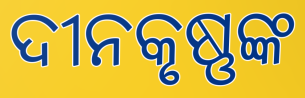
ଦୀନକୃଷ୍ଣଙ୍କ